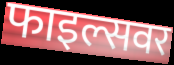
फाइल्सवर